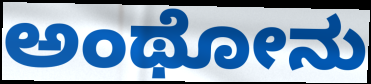
ಅಂಥೋನು